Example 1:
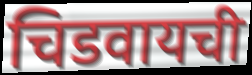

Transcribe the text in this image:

चिडवायची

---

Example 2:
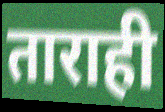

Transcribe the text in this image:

ताराही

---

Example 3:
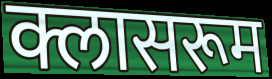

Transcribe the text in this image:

क्लासरूम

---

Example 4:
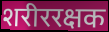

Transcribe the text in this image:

शरीररक्षक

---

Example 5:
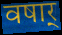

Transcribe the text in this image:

वषार्